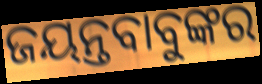
ଜୟନ୍ତବାବୁଙ୍କର